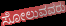
ಸೋಲುವವರು